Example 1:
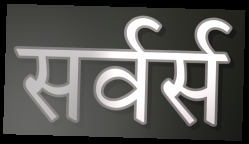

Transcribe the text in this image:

सर्वर्स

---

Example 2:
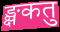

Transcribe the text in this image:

ङ्क्षकतु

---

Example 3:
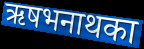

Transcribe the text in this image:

ऋषभनाथका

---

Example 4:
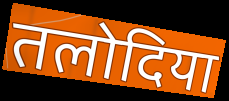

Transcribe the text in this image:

तलोदिया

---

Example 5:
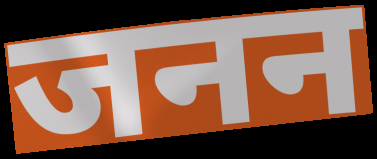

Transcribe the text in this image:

जनन